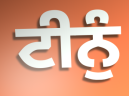
ਟੀਨੁੰ